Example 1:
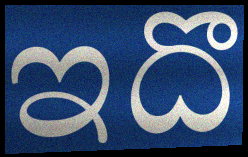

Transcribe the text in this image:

ఇదొ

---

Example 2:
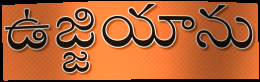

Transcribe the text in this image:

ఉజ్జియాను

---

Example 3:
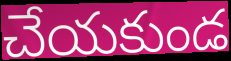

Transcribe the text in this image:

చేయకుండ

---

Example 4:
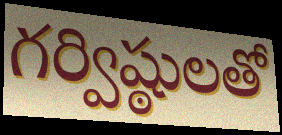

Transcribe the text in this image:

గర్విష్ఠులతో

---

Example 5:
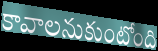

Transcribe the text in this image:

కావాలనుకుంటోంది